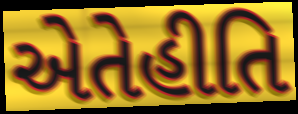
એતેહીતિ